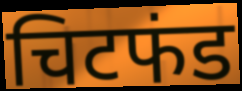
चिटफंड